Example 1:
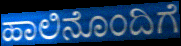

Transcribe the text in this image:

ಹಾಲಿನೊಂದಿಗೆ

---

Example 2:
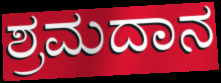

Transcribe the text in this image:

ಶ್ರಮದಾನ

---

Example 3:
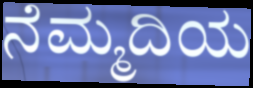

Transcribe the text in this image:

ನೆಮ್ಮದಿಯ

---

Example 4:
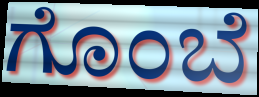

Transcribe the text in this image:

ಗೊಂಬೆ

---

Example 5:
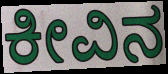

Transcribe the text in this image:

ಕೀವಿನ